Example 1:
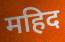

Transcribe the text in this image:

महिद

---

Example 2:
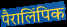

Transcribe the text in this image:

पैरालिंपिक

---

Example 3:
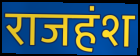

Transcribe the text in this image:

राजहंश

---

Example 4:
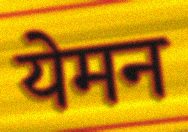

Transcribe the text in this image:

येमन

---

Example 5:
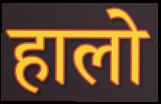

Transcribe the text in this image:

हालो